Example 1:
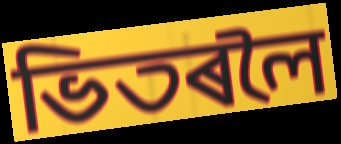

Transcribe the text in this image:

ভিতৰলৈ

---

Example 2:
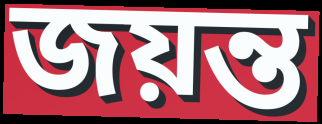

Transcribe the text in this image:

জয়ন্ত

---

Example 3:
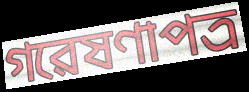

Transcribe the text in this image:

গৱেষণাপত্ৰ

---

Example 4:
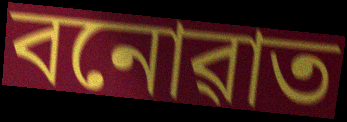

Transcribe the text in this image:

বনোৱাত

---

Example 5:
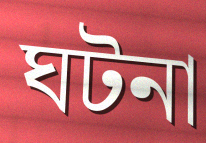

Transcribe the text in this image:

ঘটনা